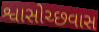
શ્વાસોચ્છવાસ